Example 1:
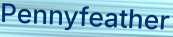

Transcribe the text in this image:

Pennyfeather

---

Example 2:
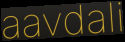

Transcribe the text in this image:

aavdali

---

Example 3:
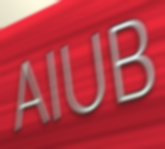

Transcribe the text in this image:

AIUB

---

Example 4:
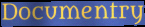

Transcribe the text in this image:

Documentry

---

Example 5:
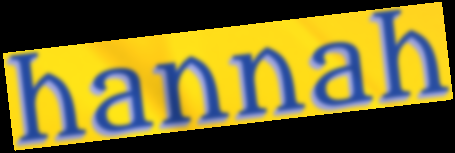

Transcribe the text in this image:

hannah